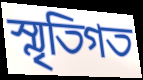
স্মৃতিগত